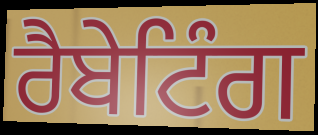
ਰੈਬੇਟਿੰਗ